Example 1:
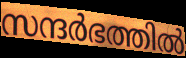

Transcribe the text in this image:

സന്ദർഭത്തിൽ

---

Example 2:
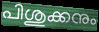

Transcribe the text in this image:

പിശുക്കനും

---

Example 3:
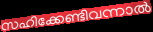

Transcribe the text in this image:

സഹിക്കേണ്ടിവന്നാൽ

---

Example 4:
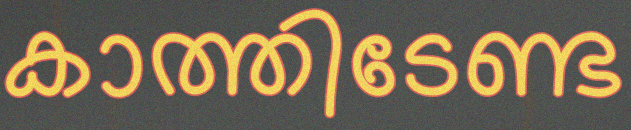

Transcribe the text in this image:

കാത്തിടേണ്ട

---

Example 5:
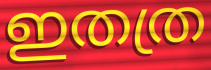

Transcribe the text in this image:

ഇതത്ര